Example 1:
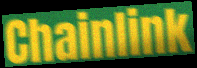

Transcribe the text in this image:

Chainlink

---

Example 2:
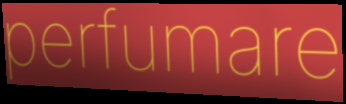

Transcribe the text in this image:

perfumare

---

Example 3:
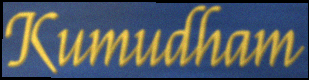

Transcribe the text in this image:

Kumudham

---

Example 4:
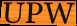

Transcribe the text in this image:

UPW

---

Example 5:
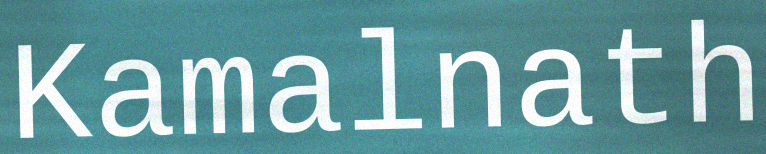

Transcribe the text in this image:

Kamalnath